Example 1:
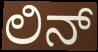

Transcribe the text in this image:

ಲಿನ್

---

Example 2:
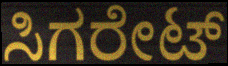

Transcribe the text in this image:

ಸಿಗರೇಟ್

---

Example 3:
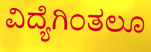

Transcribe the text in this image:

ವಿದ್ಯೆಗಿಂತಲೂ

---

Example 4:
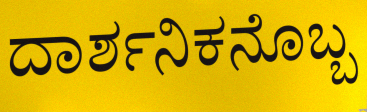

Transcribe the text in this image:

ದಾರ್ಶನಿಕನೊಬ್ಬ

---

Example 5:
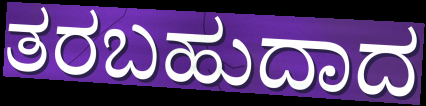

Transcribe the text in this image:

ತರಬಹುದಾದ